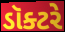
ડૉક્ટરે